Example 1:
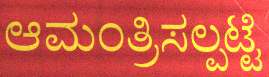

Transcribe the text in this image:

ಆಮಂತ್ರಿಸಲ್ಪಟ್ಟೆ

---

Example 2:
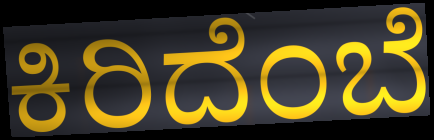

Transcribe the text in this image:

ಕಿರಿದೆಂಬೆ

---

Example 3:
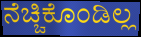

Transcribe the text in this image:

ನೆಚ್ಚಿಕೊಂಡಿಲ್ಲ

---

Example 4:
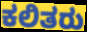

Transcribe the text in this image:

ಕಲಿತರು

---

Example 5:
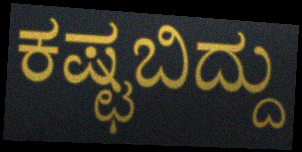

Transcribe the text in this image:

ಕಷ್ಟಬಿದ್ದು